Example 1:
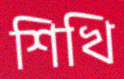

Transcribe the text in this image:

শিখি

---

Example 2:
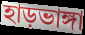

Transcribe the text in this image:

হাড়ভাঙ্গা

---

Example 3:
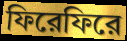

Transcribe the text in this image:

ফিরেফিরে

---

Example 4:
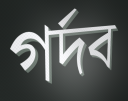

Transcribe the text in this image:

গর্দব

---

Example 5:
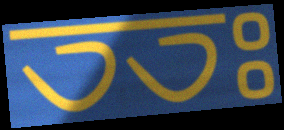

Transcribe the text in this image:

ততঃ